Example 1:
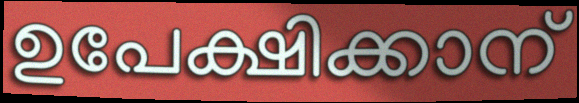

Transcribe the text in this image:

ഉപേക്ഷിക്കാന്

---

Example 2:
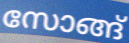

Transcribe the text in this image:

സോങ്ങ്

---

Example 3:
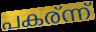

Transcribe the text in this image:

പകര്ന്ന്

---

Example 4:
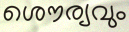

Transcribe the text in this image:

ശൌര്യവും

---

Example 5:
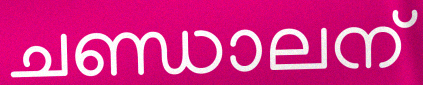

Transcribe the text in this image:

ചണ്ഡാലന്